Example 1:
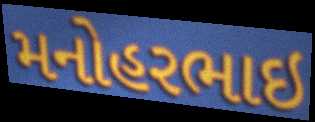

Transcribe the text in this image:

મનોહરભાઇ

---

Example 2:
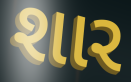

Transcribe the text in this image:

શાર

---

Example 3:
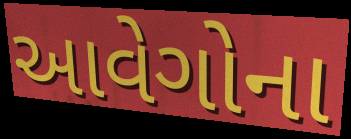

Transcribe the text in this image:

આવેગોના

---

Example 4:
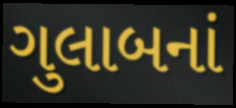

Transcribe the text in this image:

ગુલાબનાં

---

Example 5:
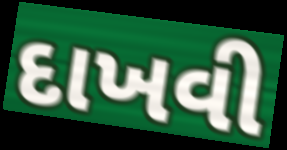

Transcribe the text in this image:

દાખવી